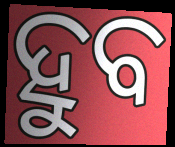
ହୁବ